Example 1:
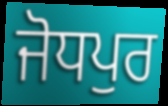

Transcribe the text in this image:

ਜੋਧਪੁਰ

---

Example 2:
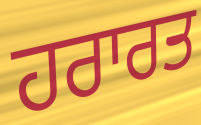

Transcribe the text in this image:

ਹਰਾਰਤ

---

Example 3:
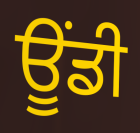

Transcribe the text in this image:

ਊਂਡੀ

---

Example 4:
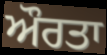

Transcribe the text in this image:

ਔਰਤਾ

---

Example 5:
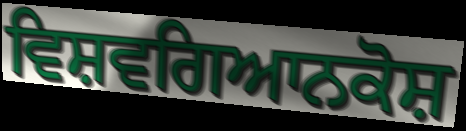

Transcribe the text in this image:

ਵਿਸ਼ਵਗਿਆਨਕੋਸ਼